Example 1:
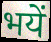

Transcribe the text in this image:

भयें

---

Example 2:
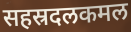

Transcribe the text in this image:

सहस्रदलकमल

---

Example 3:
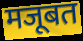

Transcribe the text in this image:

मजूबत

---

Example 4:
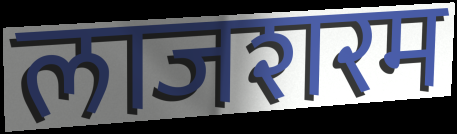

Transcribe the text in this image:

लाजशरम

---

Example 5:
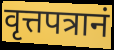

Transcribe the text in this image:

वृत्तपत्रानं